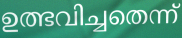
ഉത്ഭവിച്ചതെന്ന്